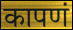
कापणं